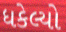
ધકેલ્યો